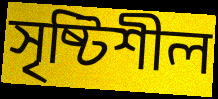
সৃষ্টিশীল